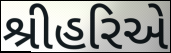
શ્રીહરિએ